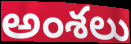
అంశలు